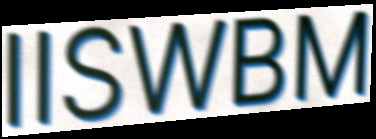
IISWBM